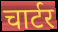
चार्टर